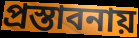
প্রস্তাবনায়